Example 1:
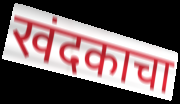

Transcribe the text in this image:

खंदकाचा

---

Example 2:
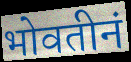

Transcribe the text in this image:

भोवतीनं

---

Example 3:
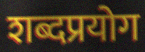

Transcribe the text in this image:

शब्दप्रयोग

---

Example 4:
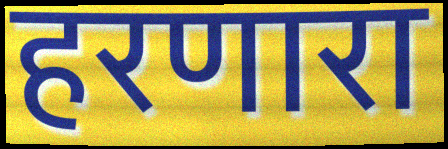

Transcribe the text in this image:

हरणारा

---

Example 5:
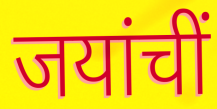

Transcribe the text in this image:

जयांचीं